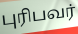
புரிபவர்